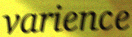
varience